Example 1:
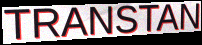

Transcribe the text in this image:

TRANSTAN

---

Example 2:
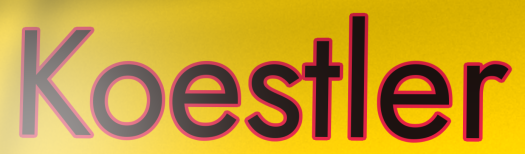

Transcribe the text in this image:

Koestler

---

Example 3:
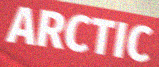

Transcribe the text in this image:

ARCTIC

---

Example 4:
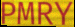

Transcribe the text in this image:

PMRY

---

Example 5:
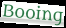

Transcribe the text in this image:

Booing